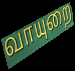
வாயுறை